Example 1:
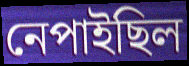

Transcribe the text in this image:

নেপাইছিল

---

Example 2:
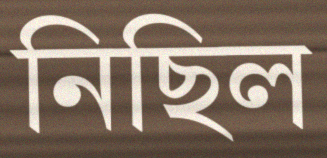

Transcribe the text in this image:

নিছিল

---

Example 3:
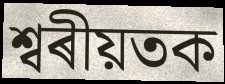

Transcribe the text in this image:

শ্বৰীয়তক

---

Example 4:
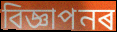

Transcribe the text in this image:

বিজ্ঞাপনৰ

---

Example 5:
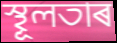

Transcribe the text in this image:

স্থূলতাৰ